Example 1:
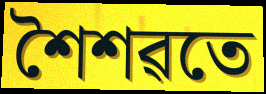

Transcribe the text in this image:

শৈশৱতে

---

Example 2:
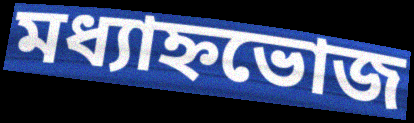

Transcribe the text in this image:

মধ্যাহ্নভোজ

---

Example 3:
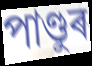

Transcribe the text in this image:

পাণ্ডুৰ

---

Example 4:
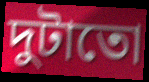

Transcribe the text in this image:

দুটাতো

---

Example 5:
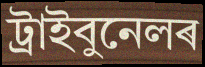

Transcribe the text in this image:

ট্ৰাইবুনেলৰ